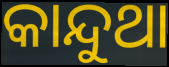
କାନ୍ଦୁଥା